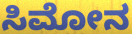
ಸಿಮೋನ